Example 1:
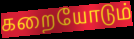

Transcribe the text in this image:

கறையோடும்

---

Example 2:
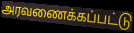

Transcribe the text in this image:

அரவணைக்கப்பட்டு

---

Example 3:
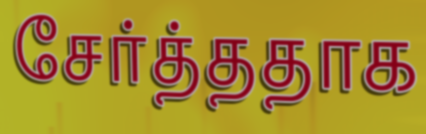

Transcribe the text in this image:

சேர்த்ததாக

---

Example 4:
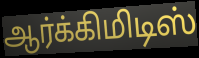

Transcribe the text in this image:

ஆர்க்கிமிடிஸ்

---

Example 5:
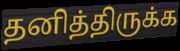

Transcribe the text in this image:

தனித்திருக்க